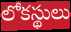
లోకస్థులు